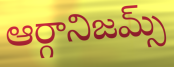
ఆర్గానిజమ్స్